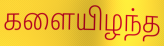
களையிழந்த